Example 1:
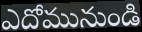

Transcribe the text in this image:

ఎదోమునుండి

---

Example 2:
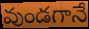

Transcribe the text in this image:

వుండగానే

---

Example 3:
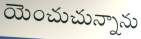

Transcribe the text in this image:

యెంచుచున్నాను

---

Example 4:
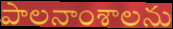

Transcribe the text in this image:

పాలనాంశాలను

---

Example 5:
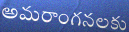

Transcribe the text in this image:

అమరాంగనలకు